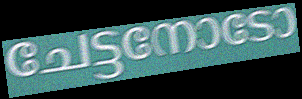
ചേട്ടനോടോ